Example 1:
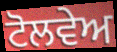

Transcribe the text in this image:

ਟੋਲਵੇਅ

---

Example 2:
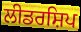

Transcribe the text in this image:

ਲੀਡਰਸ਼ਿਪ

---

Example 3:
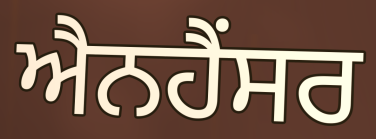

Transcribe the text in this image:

ਐਨਹੈਂਸਰ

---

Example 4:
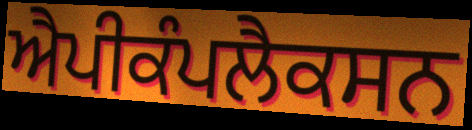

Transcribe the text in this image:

ਐਪੀਕੰਪਲੈਕਸਨ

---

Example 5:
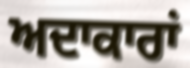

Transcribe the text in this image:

ਅਦਾਕਾਰਾਂ